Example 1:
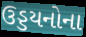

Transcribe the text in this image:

ઉડ્ડયનોના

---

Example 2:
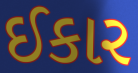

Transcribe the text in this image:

ઈકાર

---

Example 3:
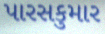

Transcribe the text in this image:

પારસકુમાર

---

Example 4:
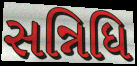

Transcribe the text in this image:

સન્નિધિ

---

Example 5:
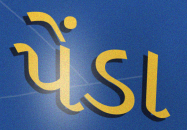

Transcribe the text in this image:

પેંડા